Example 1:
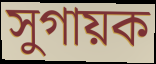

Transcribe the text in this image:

সুগায়ক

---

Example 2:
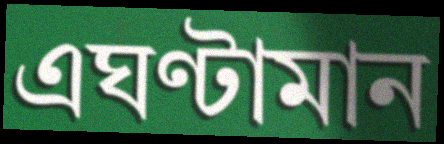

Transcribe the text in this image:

এঘণ্টামান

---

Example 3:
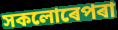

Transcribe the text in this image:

সকলোৰেপৰা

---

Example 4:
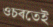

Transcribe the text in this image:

ওচৰতেই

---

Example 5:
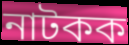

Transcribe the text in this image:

নাটকক